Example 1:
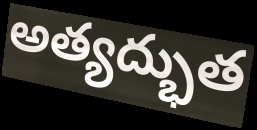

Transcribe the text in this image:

అత్యద్భుత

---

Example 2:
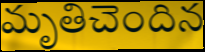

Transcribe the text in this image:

మృతిచెందిన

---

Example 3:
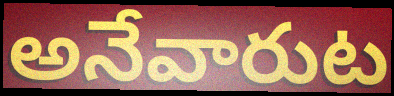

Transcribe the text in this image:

అనేవారుట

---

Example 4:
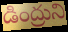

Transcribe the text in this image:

డింద్రుని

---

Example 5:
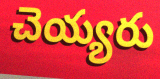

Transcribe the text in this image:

చెయ్యరు